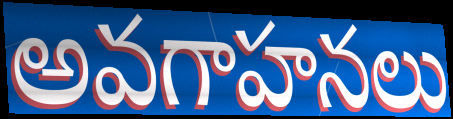
అవగాహనలు